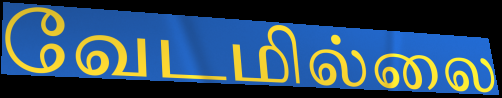
வேடமில்லை